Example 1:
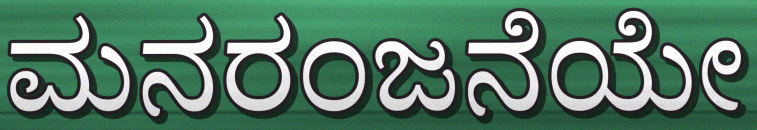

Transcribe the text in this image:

ಮನರಂಜನೆಯೇ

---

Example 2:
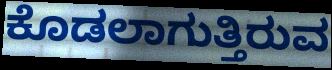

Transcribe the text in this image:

ಕೊಡಲಾಗುತ್ತಿರುವ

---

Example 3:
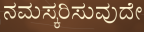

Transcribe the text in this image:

ನಮಸ್ಕರಿಸುವುದೇ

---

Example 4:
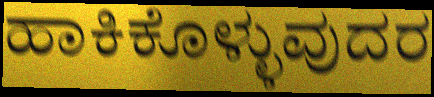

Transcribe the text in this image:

ಹಾಕಿಕೊಳ್ಳುವುದರ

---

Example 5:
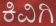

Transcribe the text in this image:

ಕಿವಿಗಿ